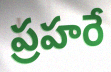
ప్రహరే